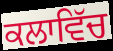
ਕਲਾਵਿੱਚ